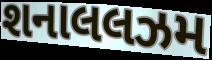
શનાલલઝમ